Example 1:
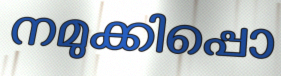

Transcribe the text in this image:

നമുക്കിപ്പൊ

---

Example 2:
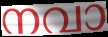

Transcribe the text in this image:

നവാ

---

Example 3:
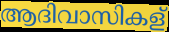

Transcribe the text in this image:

ആദിവാസികള്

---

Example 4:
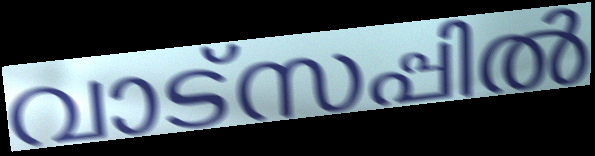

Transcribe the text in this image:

വാട്സപ്പിൽ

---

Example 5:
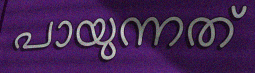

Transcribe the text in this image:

പായുന്നത്